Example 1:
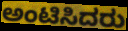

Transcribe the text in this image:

ಅಂಟಿಸಿದರು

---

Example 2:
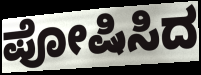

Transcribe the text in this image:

ಪೋಷಿಸಿದ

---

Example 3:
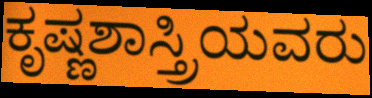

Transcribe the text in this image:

ಕೃಷ್ಣಶಾಸ್ತ್ರಿಯವರು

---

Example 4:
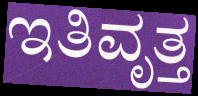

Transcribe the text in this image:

ಇತಿವೃತ್ತ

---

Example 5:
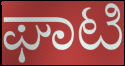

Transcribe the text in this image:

ಘಾಟಿ